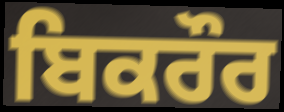
ਬਿਕਰੌਰ